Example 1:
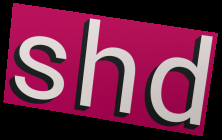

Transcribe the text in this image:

shd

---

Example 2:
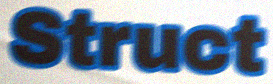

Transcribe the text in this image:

Struct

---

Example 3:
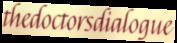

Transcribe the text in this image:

thedoctorsdialogue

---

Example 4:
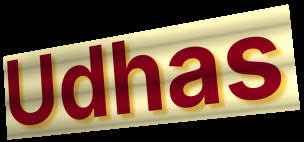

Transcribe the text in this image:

Udhas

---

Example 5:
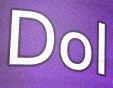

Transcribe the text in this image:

Dol